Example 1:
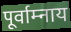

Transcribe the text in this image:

पूर्वाम्नाय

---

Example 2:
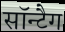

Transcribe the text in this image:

सॉन्टैग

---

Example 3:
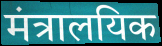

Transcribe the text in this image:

मंत्रालयिक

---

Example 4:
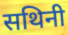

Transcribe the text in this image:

सथिनी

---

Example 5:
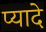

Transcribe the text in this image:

प्यादे